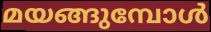
മയങ്ങുമ്പോൾ